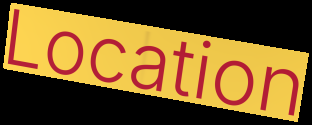
Location